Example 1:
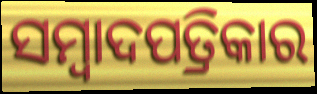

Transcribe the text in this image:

ସମ୍ବାଦପତ୍ରିକାର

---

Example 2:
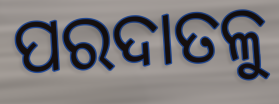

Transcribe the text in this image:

ପରଦାତଳୁ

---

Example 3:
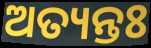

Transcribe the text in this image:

ଅତ୍ୟନ୍ତଃ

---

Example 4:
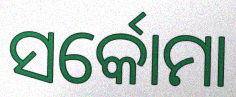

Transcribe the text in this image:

ସର୍କୋମା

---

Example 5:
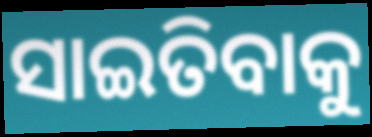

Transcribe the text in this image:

ସାଇତିବାକୁ